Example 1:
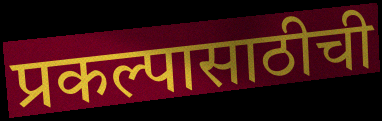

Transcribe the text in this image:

प्रकल्पासाठीची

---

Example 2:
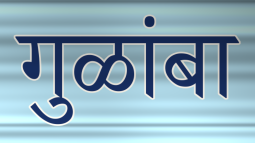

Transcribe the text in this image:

गुळांबा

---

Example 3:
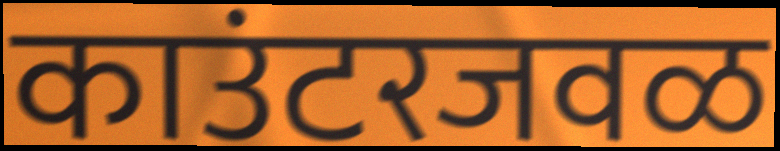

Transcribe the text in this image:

काउंटरजवळ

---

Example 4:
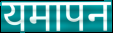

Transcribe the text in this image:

यमापन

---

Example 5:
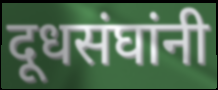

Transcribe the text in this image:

दूधसंघांनी